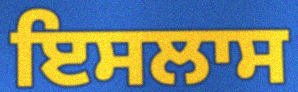
ਇਸਲਾਸ